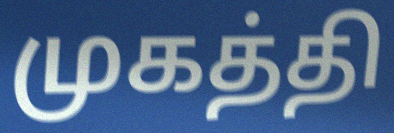
முகத்தி